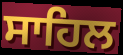
ਸਾਹਿਲ